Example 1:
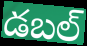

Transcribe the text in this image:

డబల్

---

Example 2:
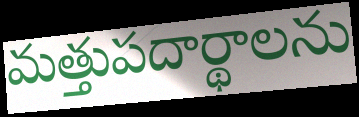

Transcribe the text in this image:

మత్తుపదార్థాలను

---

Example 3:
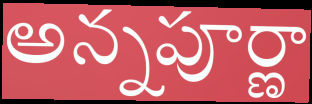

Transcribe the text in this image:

అన్నపూర్ణా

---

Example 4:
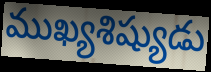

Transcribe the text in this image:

ముఖ్యశిష్యుడు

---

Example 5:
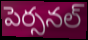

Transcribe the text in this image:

పెర్సనల్